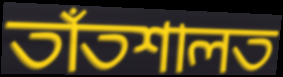
তাঁতশালত